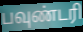
பவுண்டரி